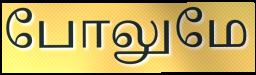
போலுமே